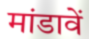
मांडावें